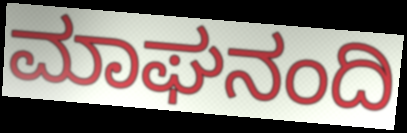
ಮಾಘನಂದಿ